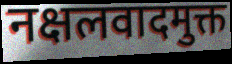
नक्षलवादमुक्त